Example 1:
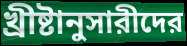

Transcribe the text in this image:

খ্রীষ্টানুসারীদের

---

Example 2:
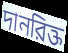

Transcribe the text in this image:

দানরিক্ত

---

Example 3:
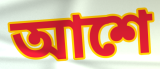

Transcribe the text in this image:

আশে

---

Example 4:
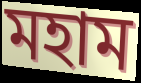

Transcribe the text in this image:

মহাম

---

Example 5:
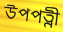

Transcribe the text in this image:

উপপত্নী